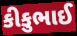
કીકુભાઈ